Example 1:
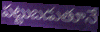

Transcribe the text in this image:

పట్టుబడుతూనే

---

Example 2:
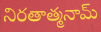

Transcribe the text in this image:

నిరతాత్మనామ్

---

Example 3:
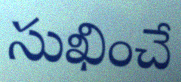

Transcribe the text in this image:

సుఖించే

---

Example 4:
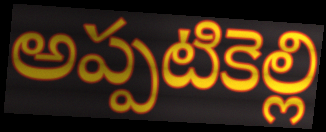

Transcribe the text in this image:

అప్పటికెల్లి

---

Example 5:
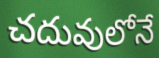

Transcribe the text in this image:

చదువులోనే